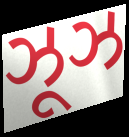
ઝૂઝ